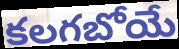
కలగబోయే